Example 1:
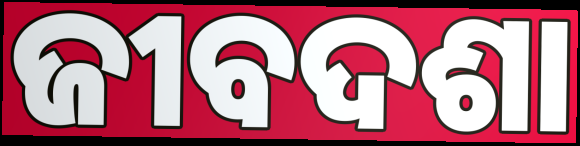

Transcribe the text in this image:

ଜୀବଦଶା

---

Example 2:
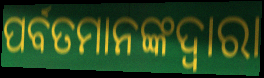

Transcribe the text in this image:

ପର୍ବତମାନଙ୍କଦ୍ଵାରା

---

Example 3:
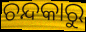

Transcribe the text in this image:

ଚନ୍ଦକାରୁ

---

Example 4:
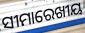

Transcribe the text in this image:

ସୀମାରେଖୀୟ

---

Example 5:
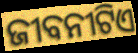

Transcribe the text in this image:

ଜୀବନୀଟିଏ